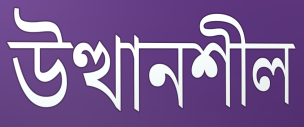
উত্থানশীল